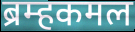
ब्रम्हकमल